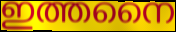
ഇത്തനൈ